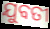
ଯୁବତୀ